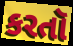
કરતૉ